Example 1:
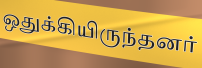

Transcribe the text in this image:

ஒதுக்கியிருந்தனர்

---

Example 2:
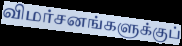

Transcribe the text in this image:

விமர்சனங்களுக்குப்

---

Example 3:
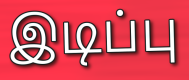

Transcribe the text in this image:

இடிப்பு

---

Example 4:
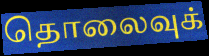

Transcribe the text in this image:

தொலைவுக்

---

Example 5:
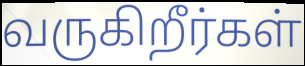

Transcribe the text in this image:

வருகிறீர்கள்